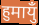
हुमायुँ